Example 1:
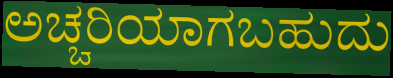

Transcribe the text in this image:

ಅಚ್ಚರಿಯಾಗಬಹುದು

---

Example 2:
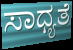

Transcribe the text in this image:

ಸಾಧ್ಯತೆ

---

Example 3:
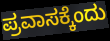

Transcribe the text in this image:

ಪ್ರವಾಸಕ್ಕೆಂದು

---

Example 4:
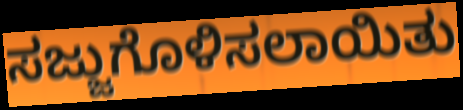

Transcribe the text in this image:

ಸಜ್ಜುಗೊಳಿಸಲಾಯಿತು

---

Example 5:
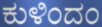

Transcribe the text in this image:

ಕುಳಿಂದಂ